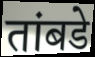
तांबडे